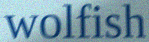
wolfish